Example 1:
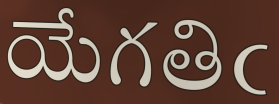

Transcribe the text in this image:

యేగతిఁ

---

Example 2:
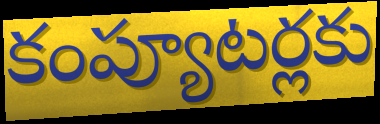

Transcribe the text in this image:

కంప్యూటర్లకు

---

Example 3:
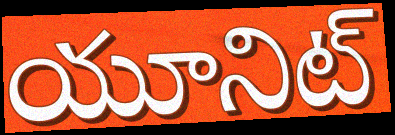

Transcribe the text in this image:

యూనిట్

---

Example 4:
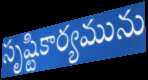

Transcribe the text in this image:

సృష్టికార్యమును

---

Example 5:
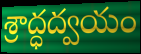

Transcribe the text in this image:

శ్రాద్ధద్వయం